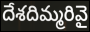
దేశదిమ్మరివై